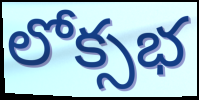
లోక్సభ